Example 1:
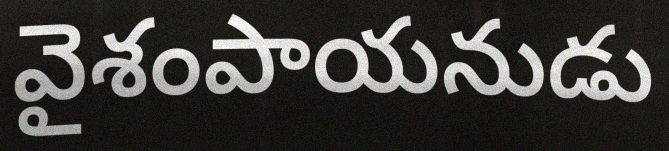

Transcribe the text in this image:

వైశంపాయనుడు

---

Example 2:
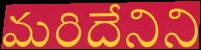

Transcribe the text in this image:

మరిదేనిని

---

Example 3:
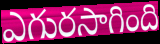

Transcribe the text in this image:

ఎగురసాగింది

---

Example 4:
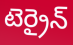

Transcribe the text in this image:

టెర్రైన్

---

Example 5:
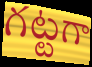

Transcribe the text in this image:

గట్టగా